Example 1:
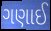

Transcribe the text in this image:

ગણાઈ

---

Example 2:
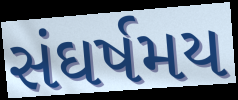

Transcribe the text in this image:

સંઘર્ષમય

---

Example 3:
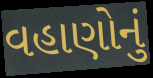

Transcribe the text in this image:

વહાણોનું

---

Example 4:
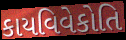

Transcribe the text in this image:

કાયવિવેકોતિ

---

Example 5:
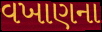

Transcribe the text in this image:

વખાણના